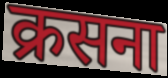
क्रसना